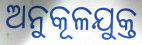
ଅନୁକୂଳଯୁକ୍ତ